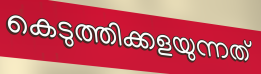
കെടുത്തിക്കളയുന്നത്